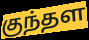
குந்தள